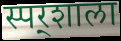
स्पर्शाला